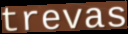
trevas